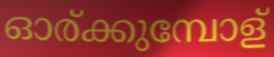
ഓര്ക്കുമ്പോള്